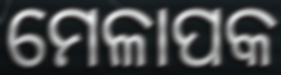
ମେଳାପକ